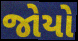
જોયો